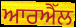
ਆਰਐੱਲ